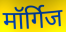
मॉर्गिज